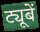
ट्यूबें